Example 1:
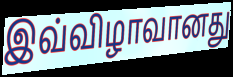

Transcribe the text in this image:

இவ்விழாவானது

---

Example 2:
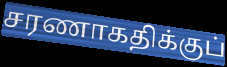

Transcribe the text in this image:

சரணாகதிக்குப்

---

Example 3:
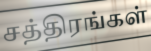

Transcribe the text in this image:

சத்திரங்கள்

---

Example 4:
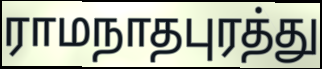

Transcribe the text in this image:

ராமநாதபுரத்து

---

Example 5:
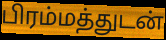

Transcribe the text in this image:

பிரம்மத்துடன்